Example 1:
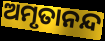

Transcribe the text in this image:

ଅମୃତାନନ୍ଦ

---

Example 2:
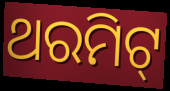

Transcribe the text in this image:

ଥରମିଟ୍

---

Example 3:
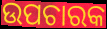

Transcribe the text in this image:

ଉପଚାରକ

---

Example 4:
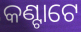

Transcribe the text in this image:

କଣ୍ଟାଟେ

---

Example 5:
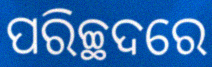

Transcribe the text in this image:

ପରିଚ୍ଛଦରେ